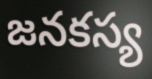
జనకస్య